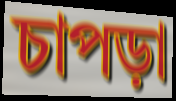
চাপড়া